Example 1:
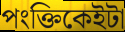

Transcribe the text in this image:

পংক্তিকেইটা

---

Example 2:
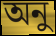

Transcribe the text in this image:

অনু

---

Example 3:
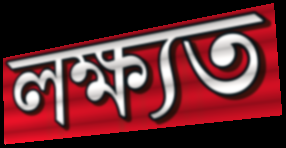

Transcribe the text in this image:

লক্ষ্যত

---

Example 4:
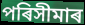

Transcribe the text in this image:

পৰিসীমাৰ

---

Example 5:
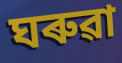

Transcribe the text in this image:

ঘৰুৱা